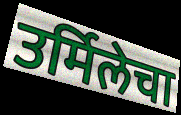
उर्मिलेचा